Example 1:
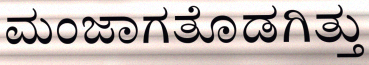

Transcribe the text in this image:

ಮಂಜಾಗತೊಡಗಿತ್ತು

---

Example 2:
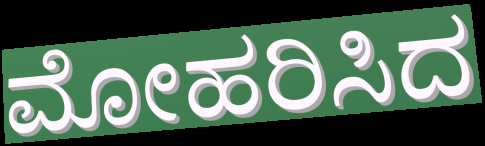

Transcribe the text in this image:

ಮೋಹರಿಸಿದ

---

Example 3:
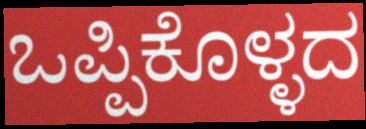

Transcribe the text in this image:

ಒಪ್ಪಿಕೊಳ್ಳದ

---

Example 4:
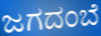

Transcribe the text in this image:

ಜಗದಂಬೆ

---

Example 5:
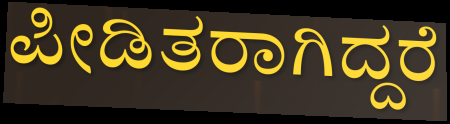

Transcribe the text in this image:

ಪೀಡಿತರಾಗಿದ್ದರೆ